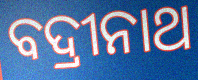
ବଦ୍ରୀନାଥ